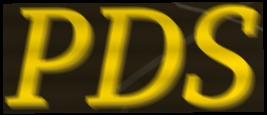
PDS